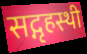
सद्गृहस्थी